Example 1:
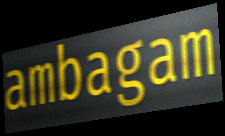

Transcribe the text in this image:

ambagam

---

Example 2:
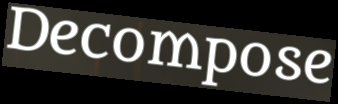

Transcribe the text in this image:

Decompose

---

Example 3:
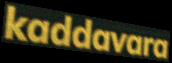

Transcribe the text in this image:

kaddavara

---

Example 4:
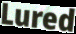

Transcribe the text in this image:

Lured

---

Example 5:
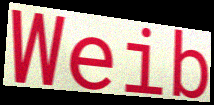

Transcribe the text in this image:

Weib